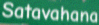
Satavahana